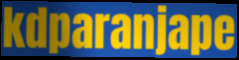
kdparanjape